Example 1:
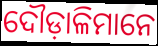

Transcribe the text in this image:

ଦୌଡ଼ାଳିମାନେ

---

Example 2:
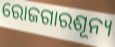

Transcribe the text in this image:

ରୋଜଗାରଶୂନ୍ୟ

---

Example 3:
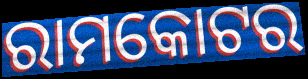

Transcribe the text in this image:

ରାମକୋଟର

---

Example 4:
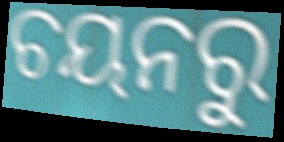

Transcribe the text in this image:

ଚୟନରୁ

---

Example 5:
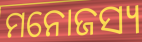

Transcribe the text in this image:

ମନୋଜସ୍ୟ